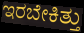
ಇರಬೇಕಿತ್ತು